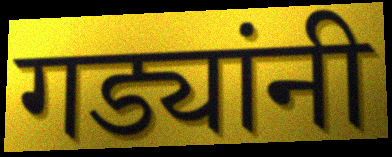
गड्यांनी